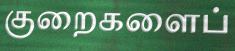
குறைகளைப்